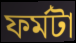
ফর্মটা